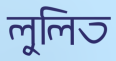
লুলিত